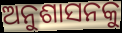
ଅନୁଶାସନକୁ